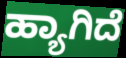
ಹ್ಯಾಗಿದೆ